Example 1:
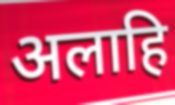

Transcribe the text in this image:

अलाहि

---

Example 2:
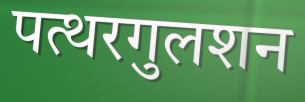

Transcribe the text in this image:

पत्थरगुलशन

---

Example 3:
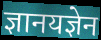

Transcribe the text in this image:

ज्ञानयज्ञेन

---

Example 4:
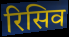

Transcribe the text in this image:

रिसिव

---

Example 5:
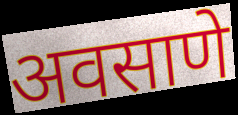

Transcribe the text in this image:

अवसाणे